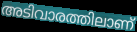
അടിവാരത്തിലാണ്